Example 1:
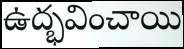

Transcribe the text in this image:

ఉద్భవించాయి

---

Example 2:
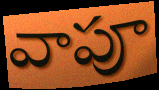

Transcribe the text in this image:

వాపూ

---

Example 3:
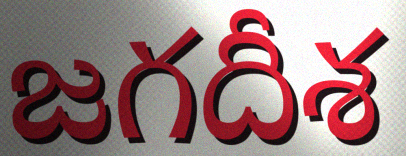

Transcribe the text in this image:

జగదీశ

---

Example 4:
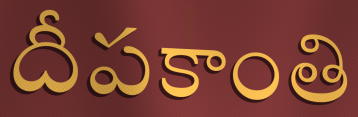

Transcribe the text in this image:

దీపకాంతి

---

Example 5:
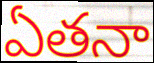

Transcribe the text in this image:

ఏతనా